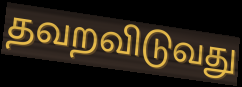
தவறவிடுவது